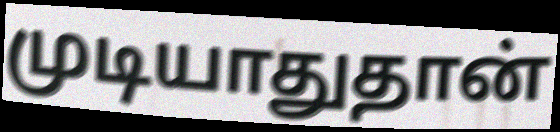
முடியாதுதான்